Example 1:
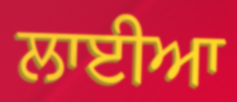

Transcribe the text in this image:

ਲਾਈਆ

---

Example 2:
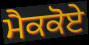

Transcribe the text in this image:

ਮੈਕਕੋਏ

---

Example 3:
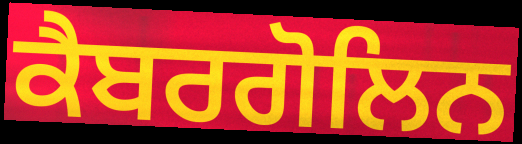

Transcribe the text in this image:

ਕੈਬਰਗੋਲਿਨ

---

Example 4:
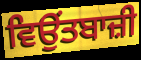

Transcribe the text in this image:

ਵਿਉਂਤਬਾਜ਼ੀ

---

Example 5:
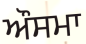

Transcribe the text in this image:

ਔਸਮਾ